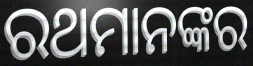
ରଥମାନଙ୍କର